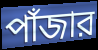
পাঁজার